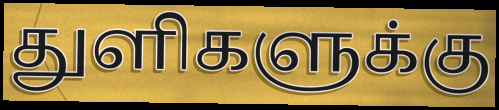
துளிகளுக்கு